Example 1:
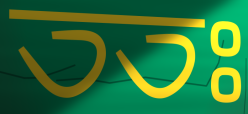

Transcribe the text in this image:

ততঃ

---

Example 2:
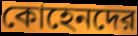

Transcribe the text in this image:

কোহেনদের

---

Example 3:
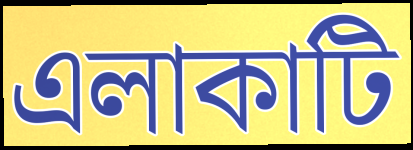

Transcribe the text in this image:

এলাকাটি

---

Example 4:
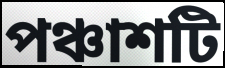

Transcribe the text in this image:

পঞ্চাশটি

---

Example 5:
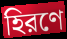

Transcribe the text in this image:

হিরণে